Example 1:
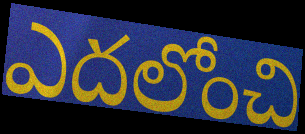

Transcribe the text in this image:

ఎదలోంచి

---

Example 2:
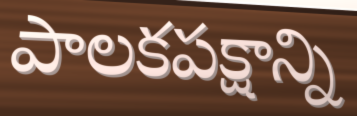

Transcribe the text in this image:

పాలకపక్షాన్ని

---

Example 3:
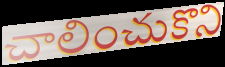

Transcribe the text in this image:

చాలించుకొని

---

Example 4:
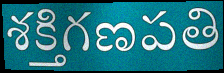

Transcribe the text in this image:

శక్తిగణపతి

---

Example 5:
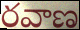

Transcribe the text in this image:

రవాణ